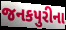
જનકપુરીના